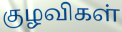
குழவிகள்